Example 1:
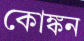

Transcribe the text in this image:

কোঙ্কন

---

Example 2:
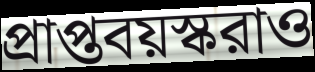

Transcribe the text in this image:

প্রাপ্তবয়স্করাও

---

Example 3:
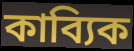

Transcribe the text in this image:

কাব্যিক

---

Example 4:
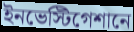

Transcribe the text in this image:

ইনভেস্টিগেশানে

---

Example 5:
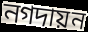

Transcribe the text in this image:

নগদায়ন